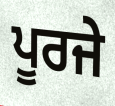
ਪੂਰਜੇ